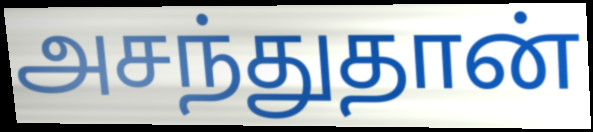
அசந்துதான்